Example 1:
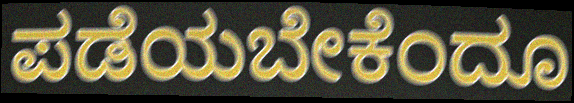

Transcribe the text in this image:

ಪಡೆಯಬೇಕೆಂದೂ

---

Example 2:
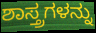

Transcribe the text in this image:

ಶಾಸ್ತ್ರಗಳನ್ನು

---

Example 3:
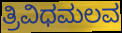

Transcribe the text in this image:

ತ್ರಿವಿಧಮಲವ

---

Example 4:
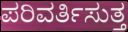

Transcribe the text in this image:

ಪರಿವರ್ತಿಸುತ್ತ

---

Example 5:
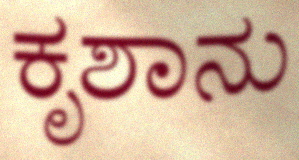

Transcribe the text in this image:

ಕೃಶಾನು